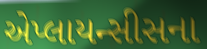
એપ્લાયન્સીસના